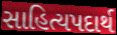
સાહિત્યપદાર્થ